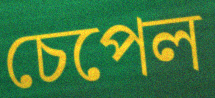
চেপেল